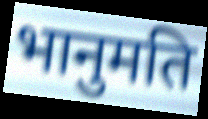
भानुमति